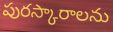
పురస్కారాలను